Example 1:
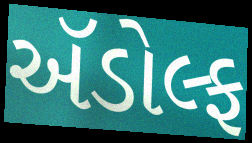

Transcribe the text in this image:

ઍડોલ્ફ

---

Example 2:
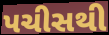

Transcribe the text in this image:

પચીસથી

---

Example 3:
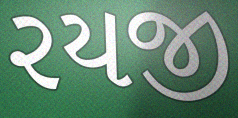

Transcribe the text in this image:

રયજી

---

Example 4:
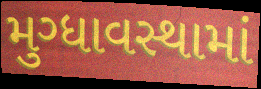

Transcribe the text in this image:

મુગ્ધાવસ્થામાં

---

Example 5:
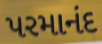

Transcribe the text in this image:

પરમાનંદ